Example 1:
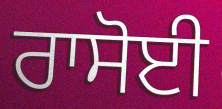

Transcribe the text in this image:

ਰਾਸੋਈ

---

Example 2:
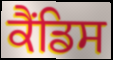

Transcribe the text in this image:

ਕੈਂਡਿਸ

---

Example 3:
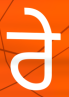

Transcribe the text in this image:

ਰੇ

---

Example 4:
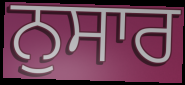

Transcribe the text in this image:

ਨੁਸਾਰ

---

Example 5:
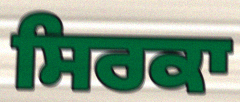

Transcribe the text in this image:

ਸਿਰਕਾ